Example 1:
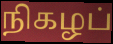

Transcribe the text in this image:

நிகழப்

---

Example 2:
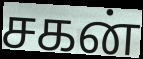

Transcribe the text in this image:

சகன்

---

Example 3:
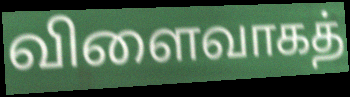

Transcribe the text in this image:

விளைவாகத்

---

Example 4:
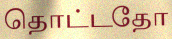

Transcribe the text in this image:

தொட்டதோ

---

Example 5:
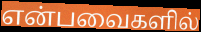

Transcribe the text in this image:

என்பவைகளில்